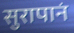
सुरापानं